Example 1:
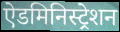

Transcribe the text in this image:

ऐडमिनिस्ट्रेशन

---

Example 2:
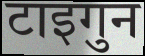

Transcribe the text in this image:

टाइगुन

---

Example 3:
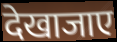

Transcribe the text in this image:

देखाजाए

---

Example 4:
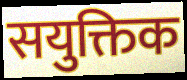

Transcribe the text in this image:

सयुक्तिक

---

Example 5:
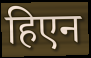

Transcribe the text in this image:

हिएन